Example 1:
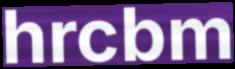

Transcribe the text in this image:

hrcbm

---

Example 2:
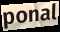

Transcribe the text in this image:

ponal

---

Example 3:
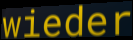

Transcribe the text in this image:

wieder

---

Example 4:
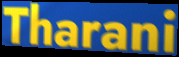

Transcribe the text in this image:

Tharani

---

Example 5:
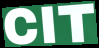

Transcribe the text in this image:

CIT